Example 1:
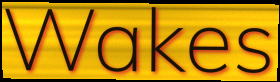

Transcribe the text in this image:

Wakes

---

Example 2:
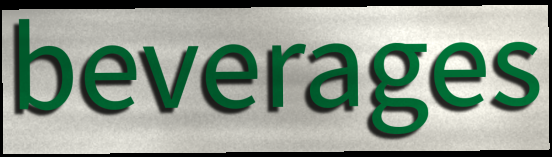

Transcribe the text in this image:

beverages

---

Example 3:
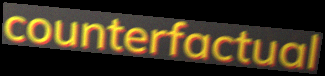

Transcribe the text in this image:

counterfactual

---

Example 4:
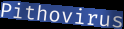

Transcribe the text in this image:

Pithovirus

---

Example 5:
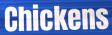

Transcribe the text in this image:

Chickens